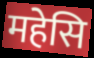
महेसि